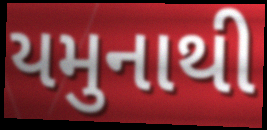
યમુનાથી